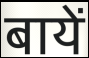
बायें